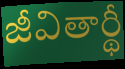
జీవితార్థీ